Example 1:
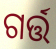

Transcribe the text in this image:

ଗର୍ତ୍ତ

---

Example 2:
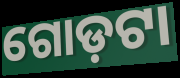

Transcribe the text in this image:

ଗୋଡ଼ଟା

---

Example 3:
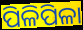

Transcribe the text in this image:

ପିଳିପିଳା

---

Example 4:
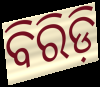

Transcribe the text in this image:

ବିରିଡ଼ି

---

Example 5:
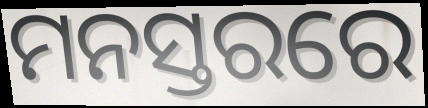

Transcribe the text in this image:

ମନସ୍ତରରେ